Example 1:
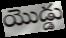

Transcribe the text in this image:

యొడ్డు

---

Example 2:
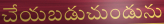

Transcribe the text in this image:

చేయబడుచుండును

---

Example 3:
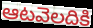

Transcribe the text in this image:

ఆటవెలదికి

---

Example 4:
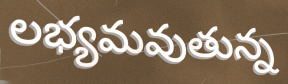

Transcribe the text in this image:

లభ్యమవుతున్న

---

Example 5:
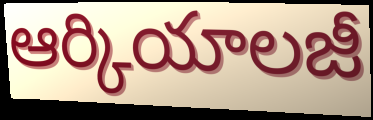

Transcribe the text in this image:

ఆర్కియాలజీ